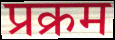
प्रक्रम